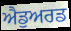
ਐਡੁਅਰਡ